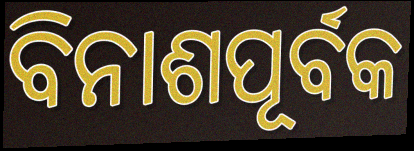
ବିନାଶପୂର୍ବକ